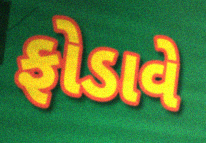
ફોડાવે